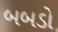
બબડો